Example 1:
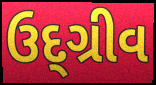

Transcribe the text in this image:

ઉદ્ગ્રીવ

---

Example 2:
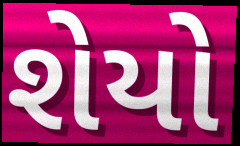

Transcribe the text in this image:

શેયો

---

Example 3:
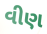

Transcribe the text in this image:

વીણ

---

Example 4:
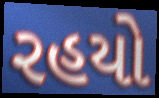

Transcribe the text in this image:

રહયો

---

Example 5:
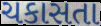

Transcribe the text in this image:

ચકાસતા